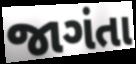
જાગંતા